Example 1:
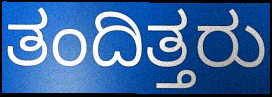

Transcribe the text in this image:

ತಂದಿತ್ತರು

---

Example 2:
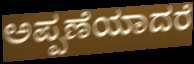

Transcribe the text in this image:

ಅಪ್ಪಣೆಯಾದರೆ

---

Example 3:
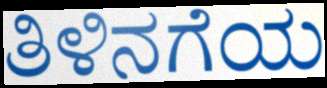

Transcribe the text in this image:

ತಿಳಿನಗೆಯ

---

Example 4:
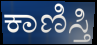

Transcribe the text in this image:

ಕಾಣಿಸ್ತಿ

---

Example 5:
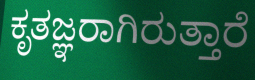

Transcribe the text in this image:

ಕೃತಜ್ಞರಾಗಿರುತ್ತಾರೆ